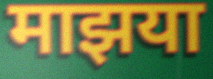
माझया